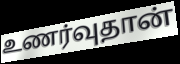
உணர்வுதான்